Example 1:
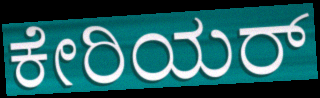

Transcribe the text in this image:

ಕೇರಿಯರ್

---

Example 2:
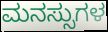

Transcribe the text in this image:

ಮನಸ್ಸುಗಳ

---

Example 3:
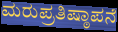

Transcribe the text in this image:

ಮರುಪ್ರತಿಷ್ಠಾಪನೆ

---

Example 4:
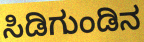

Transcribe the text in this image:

ಸಿಡಿಗುಂಡಿನ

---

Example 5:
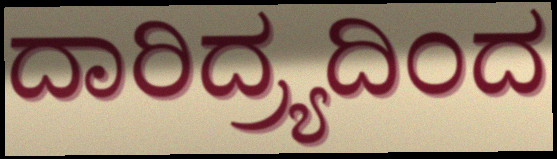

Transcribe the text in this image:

ದಾರಿದ್ರ್ಯದಿಂದ